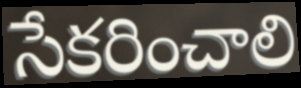
సేకరించాలి